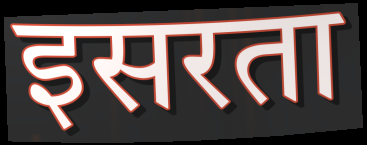
इसरता